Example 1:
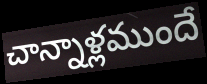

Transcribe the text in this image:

చాన్నాళ్లముందే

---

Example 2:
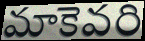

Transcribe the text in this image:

మాకెవరి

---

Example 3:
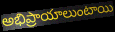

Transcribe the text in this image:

అభిప్రాయాలుంటాయి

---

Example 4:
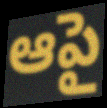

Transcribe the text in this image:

ఆపై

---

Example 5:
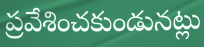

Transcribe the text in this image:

ప్రవేశించకుండునట్లు